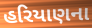
હરિયાણના